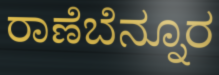
ರಾಣೆಬೆನ್ನೂರ